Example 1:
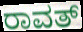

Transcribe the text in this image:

ರಾವತ್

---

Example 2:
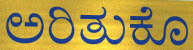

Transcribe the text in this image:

ಅರಿತುಕೊ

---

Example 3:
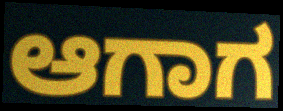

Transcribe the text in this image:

ಆಗಾಗ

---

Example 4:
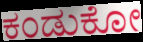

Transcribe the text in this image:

ಕಂಡುಕೋ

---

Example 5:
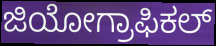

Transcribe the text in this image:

ಜಿಯೋಗ್ರಾಫಿಕಲ್